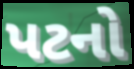
પટનો